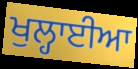
ਖੁਲ੍ਹਾਈਆ